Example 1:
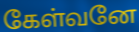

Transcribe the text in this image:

கேள்வனே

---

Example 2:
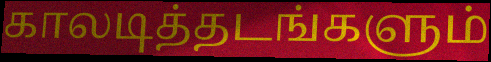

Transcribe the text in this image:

காலடித்தடங்களும்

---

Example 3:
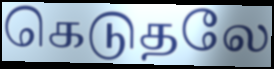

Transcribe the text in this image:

கெடுதலே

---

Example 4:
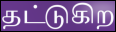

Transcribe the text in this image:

தட்டுகிற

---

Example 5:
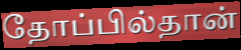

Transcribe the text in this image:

தோப்பில்தான்